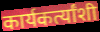
कार्यकर्त्यांशी